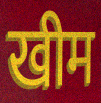
खीम